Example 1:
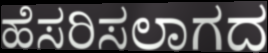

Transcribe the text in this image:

ಹೆಸರಿಸಲಾಗದ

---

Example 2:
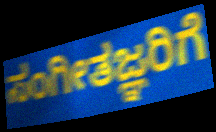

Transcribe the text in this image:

ಸಂಗೀತಜ್ಞರಿಗೆ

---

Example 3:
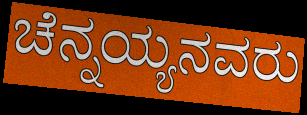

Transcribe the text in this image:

ಚೆನ್ನಯ್ಯನವರು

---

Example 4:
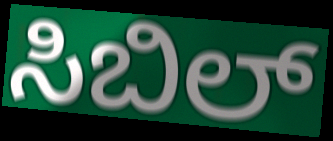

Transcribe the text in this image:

ಸಿಬಿಲ್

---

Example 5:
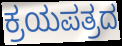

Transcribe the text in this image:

ಕ್ರಯಪತ್ರದ